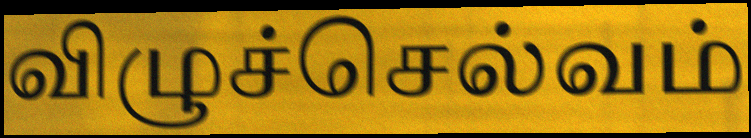
விழுச்செல்வம்